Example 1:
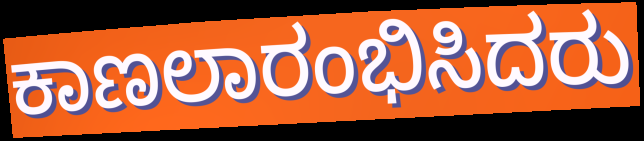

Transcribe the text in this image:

ಕಾಣಲಾರಂಭಿಸಿದರು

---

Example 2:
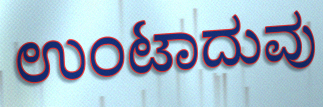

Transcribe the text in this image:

ಉಂಟಾದುವು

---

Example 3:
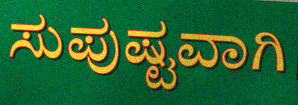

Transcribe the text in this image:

ಸುಪುಷ್ಟವಾಗಿ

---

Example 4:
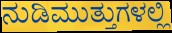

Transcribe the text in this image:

ನುಡಿಮುತ್ತುಗಳಲ್ಲಿ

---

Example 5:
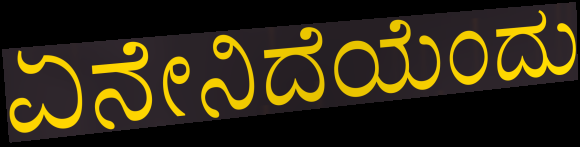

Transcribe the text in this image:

ಏನೇನಿದೆಯೆಂದು